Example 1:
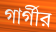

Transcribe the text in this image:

গার্গীর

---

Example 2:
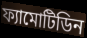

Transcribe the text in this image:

ফ্যামোটিডিন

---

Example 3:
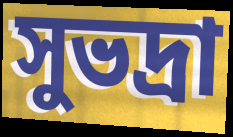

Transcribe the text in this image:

সুভদ্রা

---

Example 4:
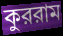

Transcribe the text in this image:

কুররাম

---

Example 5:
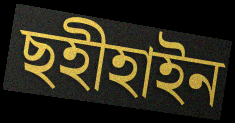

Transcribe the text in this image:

ছহীহাইন